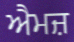
ਐਮਜ਼